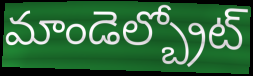
మాండెల్బ్రోట్